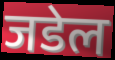
जडेल